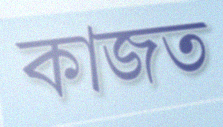
কাজত